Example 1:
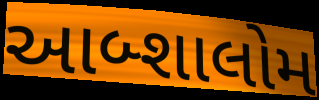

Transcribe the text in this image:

આબ્શાલોમ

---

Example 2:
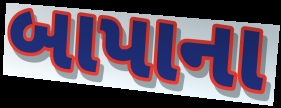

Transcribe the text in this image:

બાપાના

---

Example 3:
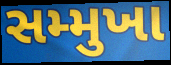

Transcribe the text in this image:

સમ્મુખા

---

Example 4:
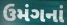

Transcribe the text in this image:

ઉમંગનાં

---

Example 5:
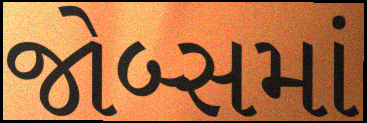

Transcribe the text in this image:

જોબ્સમાં